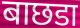
बाछडा